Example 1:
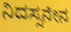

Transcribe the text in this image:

ನಿದಸ್ಸನೇನ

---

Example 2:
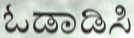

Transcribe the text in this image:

ಓಡಾಡಿಸಿ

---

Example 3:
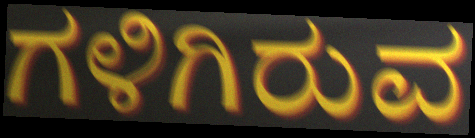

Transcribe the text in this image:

ಗಳಿಗಿರುವ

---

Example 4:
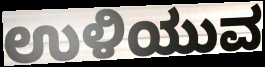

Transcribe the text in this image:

ಉಳಿಯುವ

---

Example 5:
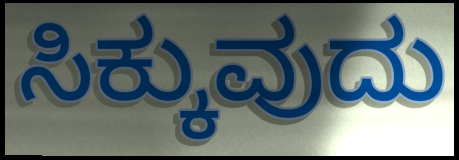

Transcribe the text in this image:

ಸಿಕ್ಕುವುದು